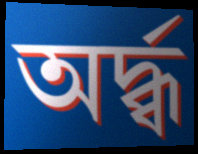
অর্দ্ধ্ব